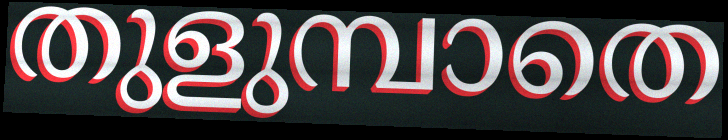
തുളുമ്പാതെ